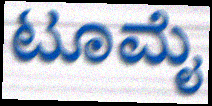
ಟೂಮೈ